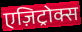
एज़िट्रोक्स